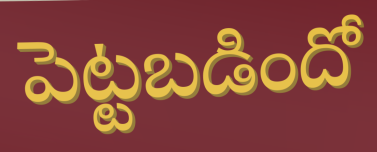
పెట్టబడిందో